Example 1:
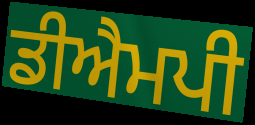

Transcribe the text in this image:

ਡੀਐਮਪੀ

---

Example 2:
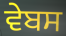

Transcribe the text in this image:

ਵੇਬਸ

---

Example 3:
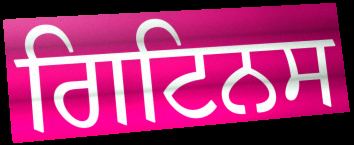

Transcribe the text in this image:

ਗਿਟਿਨਸ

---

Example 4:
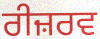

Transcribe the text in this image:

ਰੀਜ਼ਰਵ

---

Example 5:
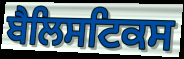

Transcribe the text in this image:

ਬੈਲਿਸਟਿਕਸ